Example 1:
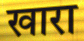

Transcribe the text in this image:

खारा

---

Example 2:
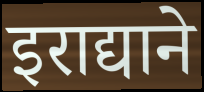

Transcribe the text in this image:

इराद्याने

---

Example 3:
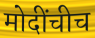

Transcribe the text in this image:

मोदींचीच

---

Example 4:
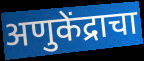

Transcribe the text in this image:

अणुकेंद्राचा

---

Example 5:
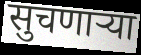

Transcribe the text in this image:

सुचणाऱ्या